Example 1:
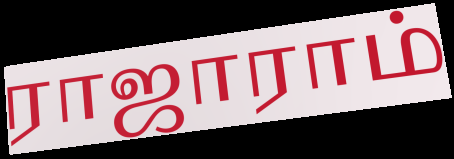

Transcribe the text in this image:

ராஜாராம்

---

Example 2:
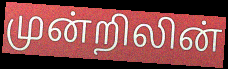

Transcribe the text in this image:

முன்றிலின்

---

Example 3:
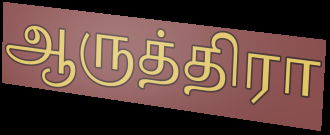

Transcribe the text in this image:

ஆருத்திரா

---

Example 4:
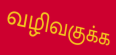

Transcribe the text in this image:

வழிவகுக்க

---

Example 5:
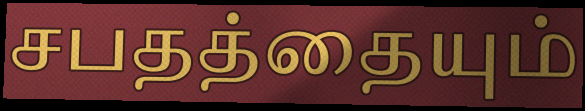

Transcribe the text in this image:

சபதத்தையும்